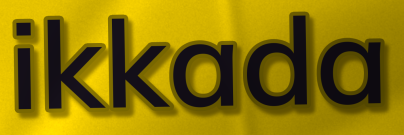
ikkada